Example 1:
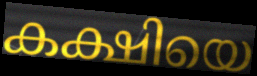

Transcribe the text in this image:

കക്ഷിയെ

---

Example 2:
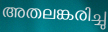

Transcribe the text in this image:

അതലങ്കരിച്ചു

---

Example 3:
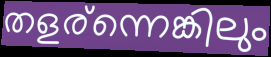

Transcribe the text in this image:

തളര്ന്നെങ്കിലും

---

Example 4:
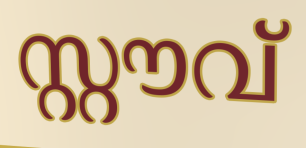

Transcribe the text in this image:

സ്റ്റൗവ്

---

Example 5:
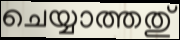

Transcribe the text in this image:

ചെയ്യാത്തതു്